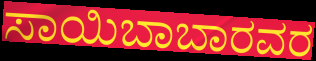
ಸಾಯಿಬಾಬಾರವರ